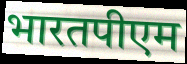
भारतपीएम